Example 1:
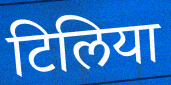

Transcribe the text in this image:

टिलिया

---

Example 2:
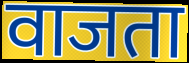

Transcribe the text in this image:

वाजता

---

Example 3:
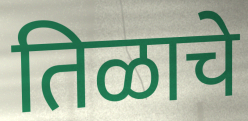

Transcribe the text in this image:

तिळाचे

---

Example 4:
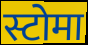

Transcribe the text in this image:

स्टोमा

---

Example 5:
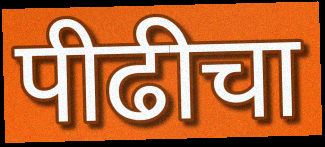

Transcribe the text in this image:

पीढीचा